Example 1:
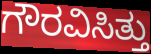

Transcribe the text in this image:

ಗೌರವಿಸಿತ್ತು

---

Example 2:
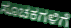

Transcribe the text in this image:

ಸೂಚಕಗಳಿಗೆ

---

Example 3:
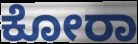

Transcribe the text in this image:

ಕೋರಾ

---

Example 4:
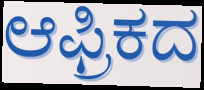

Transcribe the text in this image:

ಆಫ್ರಿಕದ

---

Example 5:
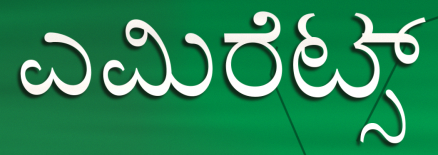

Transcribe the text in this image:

ಎಮಿರೆಟ್ಸ್